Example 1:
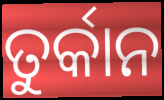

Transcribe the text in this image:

ତୁର୍କାନ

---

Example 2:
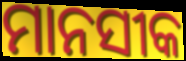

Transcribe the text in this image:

ମାନସୀକ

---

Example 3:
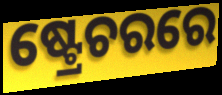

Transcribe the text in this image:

ଷ୍ଟ୍ରେଚରରେ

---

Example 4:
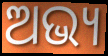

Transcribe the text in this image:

ଅଭ୍ୟ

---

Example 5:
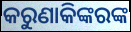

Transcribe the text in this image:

କରୁଣାକିଙ୍କରଙ୍କ